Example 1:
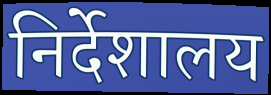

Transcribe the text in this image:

निर्देशालय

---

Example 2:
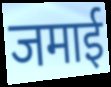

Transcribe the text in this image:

जमाई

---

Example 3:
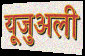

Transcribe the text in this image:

यूजुअली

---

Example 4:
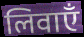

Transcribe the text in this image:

लिवाएँ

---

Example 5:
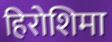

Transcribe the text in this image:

हिरोशिमा